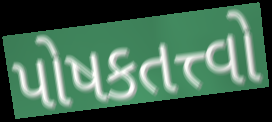
પોષકતત્ત્વો